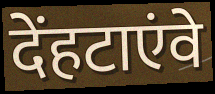
देंहटाएंवे